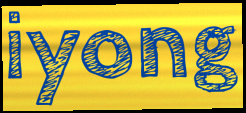
iyong